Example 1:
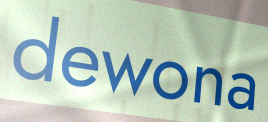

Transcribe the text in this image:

dewona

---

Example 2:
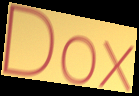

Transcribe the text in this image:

Dox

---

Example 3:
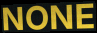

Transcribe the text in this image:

NONE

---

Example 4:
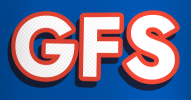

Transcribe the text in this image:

GFS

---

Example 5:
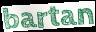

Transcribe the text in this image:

bartan